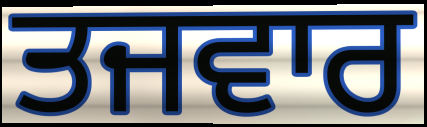
ਤਜਵਾਰ